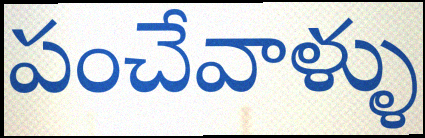
పంచేవాళ్ళు